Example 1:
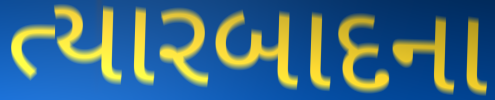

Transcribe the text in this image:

ત્યારબાદના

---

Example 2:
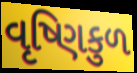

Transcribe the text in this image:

વૃષ્ણિકુળ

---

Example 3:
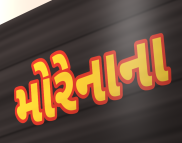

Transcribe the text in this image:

મોરેનાના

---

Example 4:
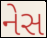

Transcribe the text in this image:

નેસ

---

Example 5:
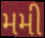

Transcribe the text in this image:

મમી